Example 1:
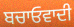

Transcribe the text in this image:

ਬਚਾਓਵਾਦੀ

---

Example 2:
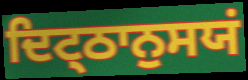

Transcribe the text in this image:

ਦਿਟ੍ਠਾਨੁਸਯਂ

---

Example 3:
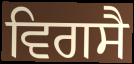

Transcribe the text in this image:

ਵਿਗਸੈ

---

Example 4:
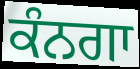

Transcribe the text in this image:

ਕੰਨਗਾ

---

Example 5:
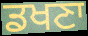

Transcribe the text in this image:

ਡਖਣਾ